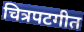
चित्रपटगीत